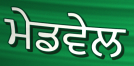
ਮੇਡਵੇਲ